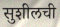
सुशीलची